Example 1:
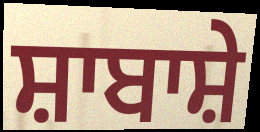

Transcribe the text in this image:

ਸ਼ਾਬਾਸ਼ੇ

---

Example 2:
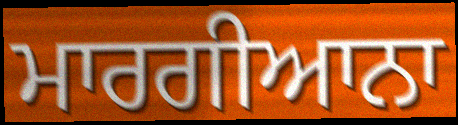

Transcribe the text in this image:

ਮਾਰਗੀਆਨਾ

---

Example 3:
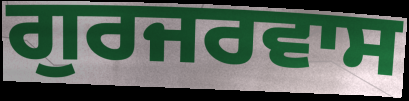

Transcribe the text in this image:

ਗੁਰਜਰਵਾਸ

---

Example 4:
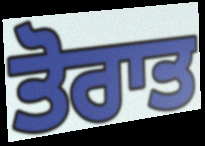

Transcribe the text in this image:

ਤੋਰਾਤ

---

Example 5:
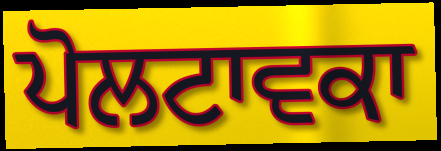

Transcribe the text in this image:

ਪੋਲਟਾਵਕਾ